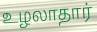
உழலாதார்